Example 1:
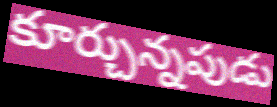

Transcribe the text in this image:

కూర్చున్నపుడు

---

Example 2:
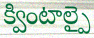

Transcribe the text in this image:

క్వింటాల్పై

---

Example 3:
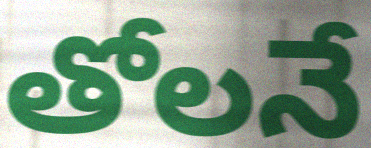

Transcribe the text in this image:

తోలనే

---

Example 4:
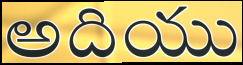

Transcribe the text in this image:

అదియు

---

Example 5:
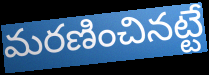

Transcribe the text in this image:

మరణించినట్టే